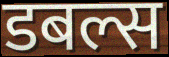
डबल्स